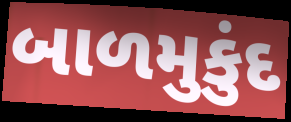
બાળમુકુંદ